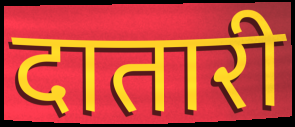
दातारी